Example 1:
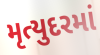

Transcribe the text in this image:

મૃત્યુદરમાં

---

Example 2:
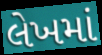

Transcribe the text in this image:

લેખમાં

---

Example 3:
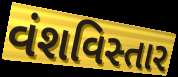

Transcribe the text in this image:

વંશવિસ્તાર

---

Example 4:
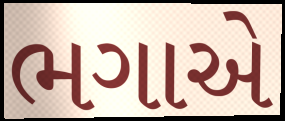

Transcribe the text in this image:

ભગાએ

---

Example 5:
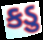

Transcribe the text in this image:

કડુ